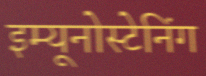
इम्यूनोस्टेनिंग